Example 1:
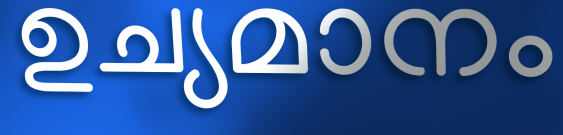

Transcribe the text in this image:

ഉച്യമാനം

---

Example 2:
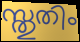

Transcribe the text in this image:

സ്തുതിം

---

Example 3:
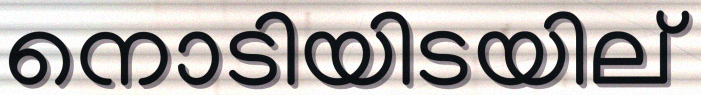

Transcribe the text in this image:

നൊടിയിടയില്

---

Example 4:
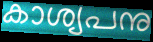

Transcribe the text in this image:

കാശ്യപനു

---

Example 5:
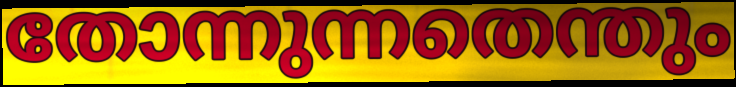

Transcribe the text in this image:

തോന്നുന്നതെന്തും